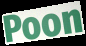
Poon